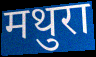
मथुरा